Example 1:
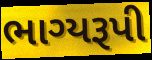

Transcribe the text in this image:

ભાગ્યરૂપી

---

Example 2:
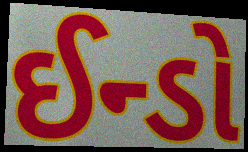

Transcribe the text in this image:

ઈન્ડો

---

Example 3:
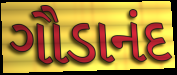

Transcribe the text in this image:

ગૌડાનંદ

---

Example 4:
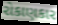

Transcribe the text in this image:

રોકાણકાર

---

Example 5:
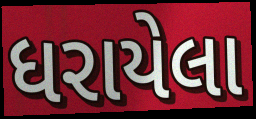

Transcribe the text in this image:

ધરાયેલા